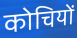
कोचियों